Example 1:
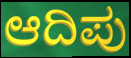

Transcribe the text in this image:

ಆದಿಪು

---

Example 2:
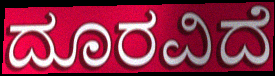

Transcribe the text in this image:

ದೂರವಿದೆ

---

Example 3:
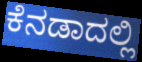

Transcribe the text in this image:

ಕೆನಡಾದಲ್ಲಿ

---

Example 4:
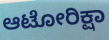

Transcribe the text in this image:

ಆಟೋರಿಕ್ಷಾ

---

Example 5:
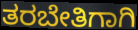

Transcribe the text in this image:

ತರಬೇತಿಗಾಗಿ